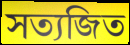
সত্যজিত